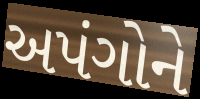
અપંગોને